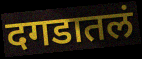
दगडातलं